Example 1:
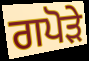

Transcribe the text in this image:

ਗਪੋੜੇ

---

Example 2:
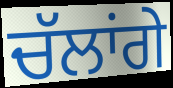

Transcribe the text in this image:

ਚੱਲਾਂਗੇ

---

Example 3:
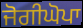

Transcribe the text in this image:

ਜੋਗੀਘੋਪਾ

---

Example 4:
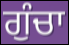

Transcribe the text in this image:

ਗੁੰਚਾ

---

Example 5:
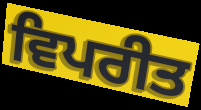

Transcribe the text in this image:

ਵਿਪਰੀਤ